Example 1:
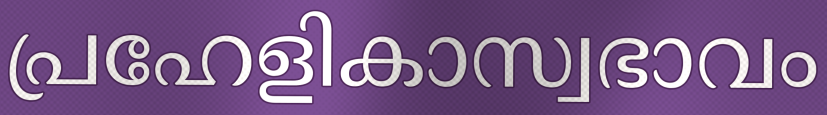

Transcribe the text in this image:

പ്രഹേളികാസ്വഭാവം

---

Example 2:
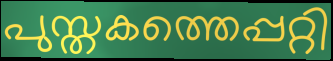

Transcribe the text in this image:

പുസ്തകത്തെപ്പറ്റി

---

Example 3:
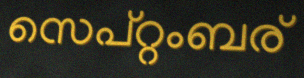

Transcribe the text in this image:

സെപ്റ്റംബര്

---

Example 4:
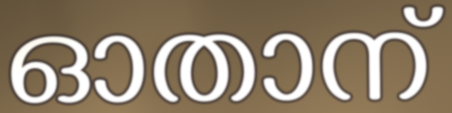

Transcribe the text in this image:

ഓതാന്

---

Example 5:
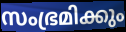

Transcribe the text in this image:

സംഭ്രമിക്കും